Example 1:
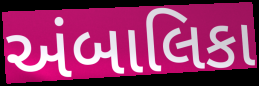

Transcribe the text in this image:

અંબાલિકા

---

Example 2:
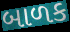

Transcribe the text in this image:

બાળક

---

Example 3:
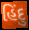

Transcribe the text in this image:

હિંદુ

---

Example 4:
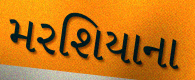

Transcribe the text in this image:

મરશિયાના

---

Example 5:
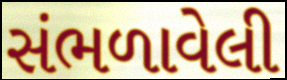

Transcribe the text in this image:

સંભળાવેલી